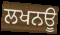
ਲਖਨਊ